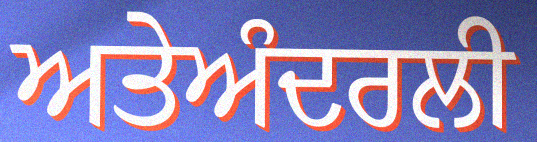
ਅਤੇਅੰਦਰਲੀ